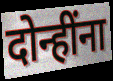
दोन्हींना